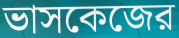
ভাসকেজের